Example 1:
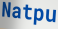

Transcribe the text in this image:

Natpu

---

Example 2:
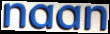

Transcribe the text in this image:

naan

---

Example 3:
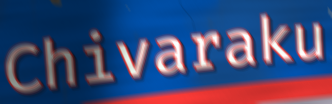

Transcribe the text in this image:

Chivaraku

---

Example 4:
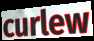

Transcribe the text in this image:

curlew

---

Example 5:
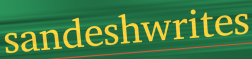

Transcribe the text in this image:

sandeshwrites